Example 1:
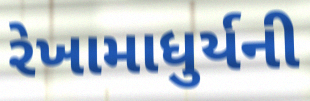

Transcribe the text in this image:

રેખામાધુર્યની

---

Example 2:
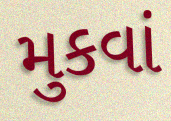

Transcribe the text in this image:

મુકવાં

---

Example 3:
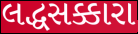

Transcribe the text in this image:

લદ્ધસક્કારા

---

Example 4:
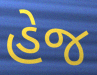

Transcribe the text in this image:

હેજ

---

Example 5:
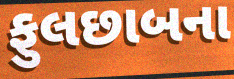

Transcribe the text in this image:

ફુલછાબના